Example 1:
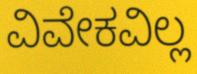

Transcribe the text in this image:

ವಿವೇಕವಿಲ್ಲ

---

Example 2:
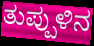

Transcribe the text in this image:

ತುಪ್ಪುಳಿನ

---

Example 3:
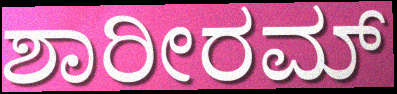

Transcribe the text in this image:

ಶಾರೀರಮ್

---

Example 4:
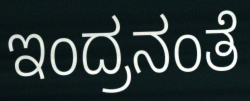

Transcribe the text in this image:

ಇಂದ್ರನಂತೆ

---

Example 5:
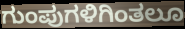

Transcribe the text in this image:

ಗುಂಪುಗಳಿಗಿಂತಲೂ